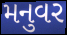
મનુવર